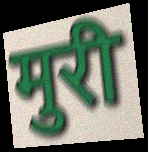
मुरी